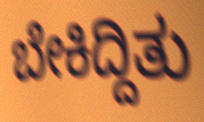
ಬೇಕಿದ್ದಿತು